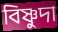
বিষ্ণুদা